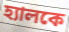
হ্যালকে